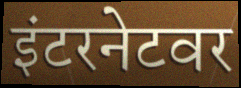
इंटरनेटवर